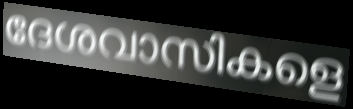
ദേശവാസികളെ